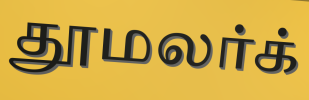
தூமலர்க்